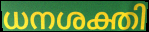
ധനശക്തി